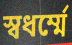
স্বধর্ম্মে